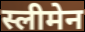
स्लीमेन